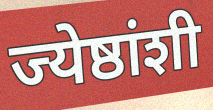
ज्येष्ठांशी